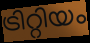
ട്രിറ്റിയം